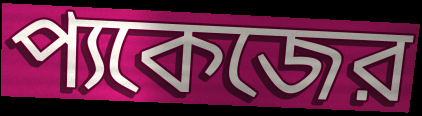
প্যকেজের